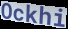
Ockhi